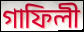
গাফিলী